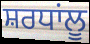
ਸ਼ਰਧਾਂਲੂ